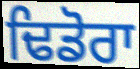
ਢਿਡੋਰਾ